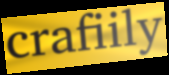
crafiily